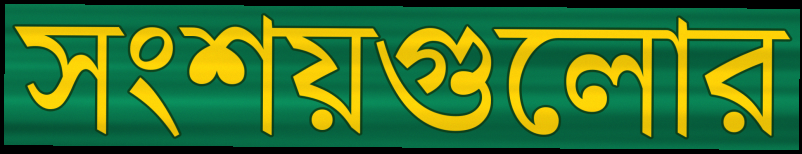
সংশয়গুলোর